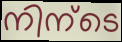
നിന്ടെ